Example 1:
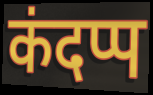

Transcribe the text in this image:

कंदप्प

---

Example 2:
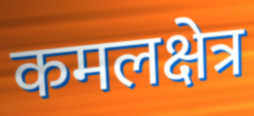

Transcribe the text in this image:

कमलक्षेत्र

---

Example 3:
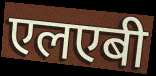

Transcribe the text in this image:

एलएबी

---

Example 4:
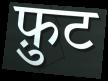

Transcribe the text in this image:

फ़ुट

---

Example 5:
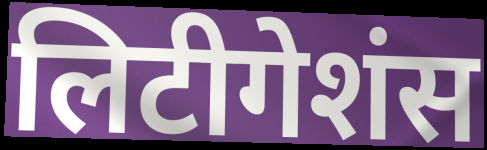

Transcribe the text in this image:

लिटीगेशंस